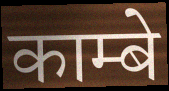
काम्बे